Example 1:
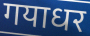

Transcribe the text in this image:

गयाधर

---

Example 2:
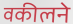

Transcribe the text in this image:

वकीलने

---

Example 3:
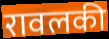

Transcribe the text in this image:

रावलकी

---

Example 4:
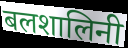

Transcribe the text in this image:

बलशालिनी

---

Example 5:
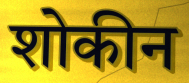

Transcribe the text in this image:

शोकीन